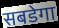
सबडेगा